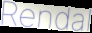
Rendal